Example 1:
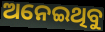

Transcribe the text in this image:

ଅନେଇଥିବୁ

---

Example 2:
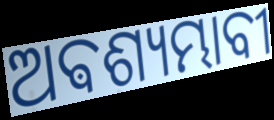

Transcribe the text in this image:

ଅଵଶ୍ୟମ୍ଭାବୀ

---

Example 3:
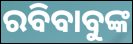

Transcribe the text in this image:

ରବିବାବୁଙ୍କ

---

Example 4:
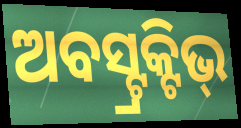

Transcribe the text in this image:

ଅବସ୍ଟ୍ରକ୍ଟିଭ୍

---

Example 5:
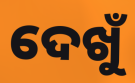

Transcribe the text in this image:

ଦେଖୁଁ